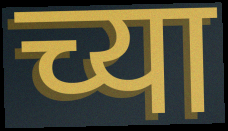
च्या